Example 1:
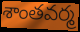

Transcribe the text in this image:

శాంతవర్మ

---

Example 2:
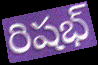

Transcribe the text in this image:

రిషభ్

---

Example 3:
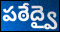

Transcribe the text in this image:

పఠేద్వై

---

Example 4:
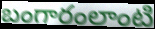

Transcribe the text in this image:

బంగారంలాంటి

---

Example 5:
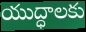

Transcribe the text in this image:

యుద్ధాలకు